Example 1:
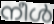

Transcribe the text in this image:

നീൾ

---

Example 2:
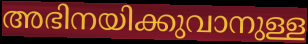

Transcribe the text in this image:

അഭിനയിക്കുവാനുള്ള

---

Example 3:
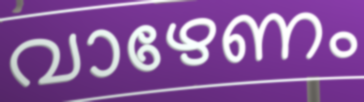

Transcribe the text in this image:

വാഴേണം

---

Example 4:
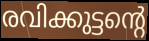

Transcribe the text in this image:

രവിക്കുട്ടന്റെ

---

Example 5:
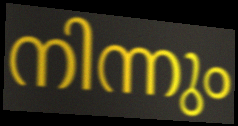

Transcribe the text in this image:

നിന്നും